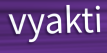
vyakti